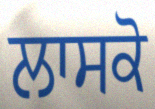
ਲਾਸਕੋ